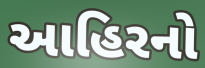
આહિરનો